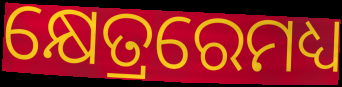
କ୍ଷେତ୍ରରେମଧ୍ୟ